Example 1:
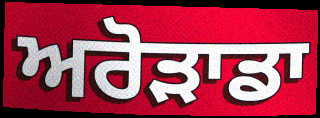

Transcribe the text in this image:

ਅਰੋੜਾਡਾ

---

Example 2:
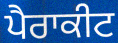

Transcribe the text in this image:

ਪੈਰਾਕੀਟ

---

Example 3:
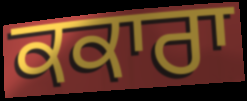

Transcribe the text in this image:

ਕਕਾਰਾ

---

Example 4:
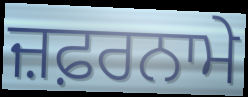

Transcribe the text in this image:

ਜ਼ਫ਼ਰਨਾਮੇ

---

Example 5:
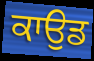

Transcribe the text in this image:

ਕਾਉਡ